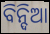
ବିନ୍ଦିଆ